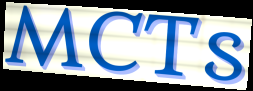
MCTs